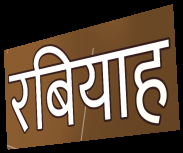
रबियाह